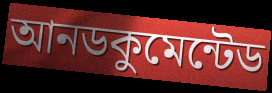
আনডকুমেন্টেড